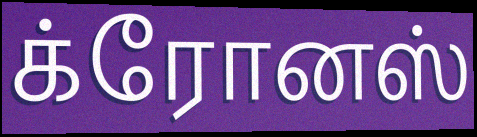
க்ரோனஸ்